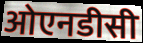
ओएनडीसी